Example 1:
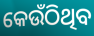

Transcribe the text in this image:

କେଉଁଠିଥିବ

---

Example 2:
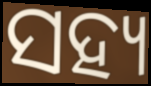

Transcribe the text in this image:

ସହ୍ୟ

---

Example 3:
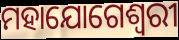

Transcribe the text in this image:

ମହାଯୋଗେଶ୍ୱରୀ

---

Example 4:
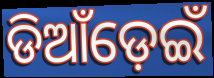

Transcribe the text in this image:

ଡିଆଁଡ଼େଇଁ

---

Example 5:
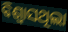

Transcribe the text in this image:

ବିଶ୍ୱାସଥିଲା